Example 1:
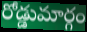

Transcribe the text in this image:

రోడ్డుమార్గం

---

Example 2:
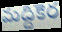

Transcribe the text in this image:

మద్దికెర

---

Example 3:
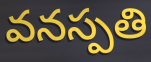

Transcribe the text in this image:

వనస్పతి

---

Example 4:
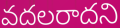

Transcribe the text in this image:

వదలరాదని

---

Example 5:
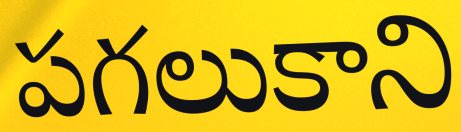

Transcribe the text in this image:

పగలుకాని